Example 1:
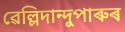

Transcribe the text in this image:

ৱেল্লিদান্দুপাৰুৰ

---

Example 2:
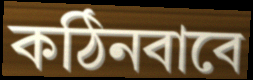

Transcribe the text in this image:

কঠিনবাবে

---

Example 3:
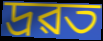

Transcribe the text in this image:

দ্ৰৱত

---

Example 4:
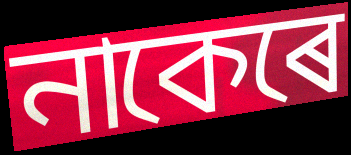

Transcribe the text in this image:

নাকেৰে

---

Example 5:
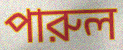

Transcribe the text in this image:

পাৰুল